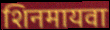
शिनमायवा